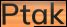
Ptak